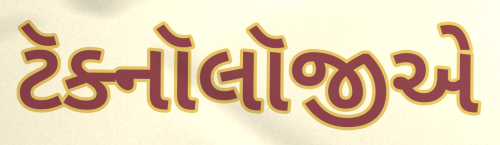
ટૅક્નૉલૉજીએ